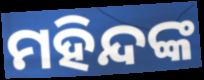
ମହିନ୍ଦଙ୍କ